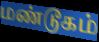
மண்டூகம்